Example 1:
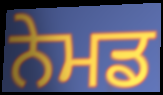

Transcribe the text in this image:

ਨੇਮਡ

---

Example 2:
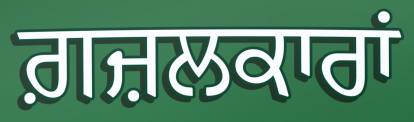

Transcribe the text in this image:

ਗ਼ਜ਼ਲਕਾਰਾਂ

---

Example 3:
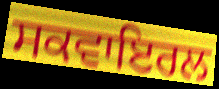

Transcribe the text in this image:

ਸਕਵਾਇਰਲ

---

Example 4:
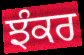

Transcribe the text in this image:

ਝੰਕਰ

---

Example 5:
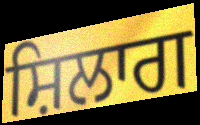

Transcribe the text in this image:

ਸ਼ਿਲਾਗ